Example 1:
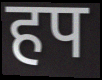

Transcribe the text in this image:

हप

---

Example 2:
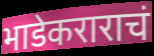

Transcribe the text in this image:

भाडेकराराचं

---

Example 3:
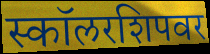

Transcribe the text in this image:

स्कॉलरशिपवर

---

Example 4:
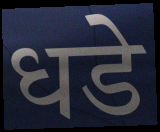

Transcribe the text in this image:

धडे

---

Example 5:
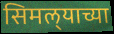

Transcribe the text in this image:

सिमल्याच्या